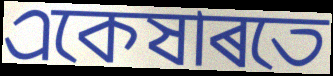
একেষাৰতে